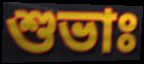
শুভাঃ